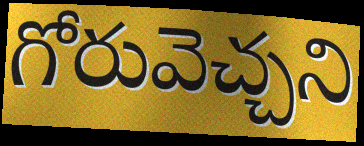
గోరువెచ్చని